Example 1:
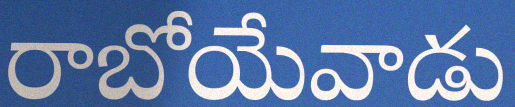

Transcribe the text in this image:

రాబోయేవాడు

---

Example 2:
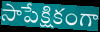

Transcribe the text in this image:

సాపేక్షికంగా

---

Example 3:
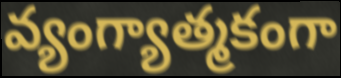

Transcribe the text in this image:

వ్యంగ్యాత్మకంగా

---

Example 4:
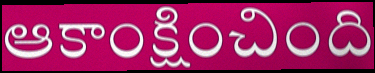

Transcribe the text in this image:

ఆకాంక్షించింది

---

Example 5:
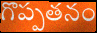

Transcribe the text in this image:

గొప్పతనం